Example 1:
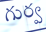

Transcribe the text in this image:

గుర్వ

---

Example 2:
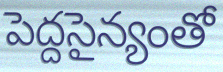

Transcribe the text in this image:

పెద్దసైన్యంతో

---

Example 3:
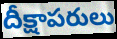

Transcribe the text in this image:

దీక్షాపరులు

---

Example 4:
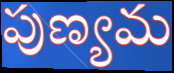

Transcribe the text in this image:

పుణ్యమ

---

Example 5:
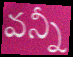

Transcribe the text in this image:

వన్నీ